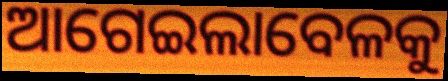
ଆଗେଇଲାବେଳକୁ